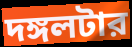
দঙ্গলটার